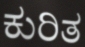
ಕುರಿತ